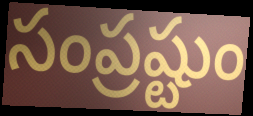
సంప్రష్టుం